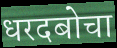
धरदबोचा